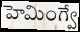
హెమింగ్వే